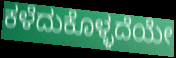
ಕಳೆದುಕೊಳ್ಳದೆಯೇ